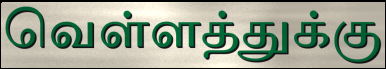
வெள்ளத்துக்கு